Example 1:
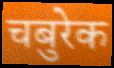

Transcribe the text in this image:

चबुरेक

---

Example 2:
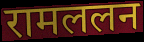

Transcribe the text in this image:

रामललन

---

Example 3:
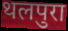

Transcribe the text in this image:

थलपुरा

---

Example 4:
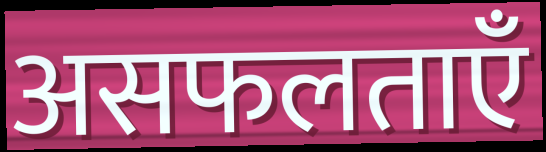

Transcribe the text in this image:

असफलताएँ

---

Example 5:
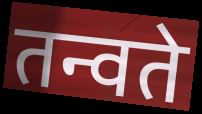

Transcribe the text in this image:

तन्वते